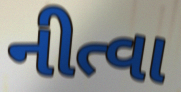
નીત્વા